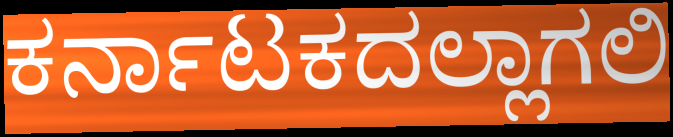
ಕರ್ನಾಟಕದಲ್ಲಾಗಲಿ